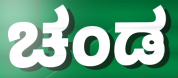
ಚಂಡ